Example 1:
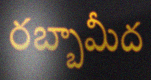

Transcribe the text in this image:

రబ్బామీద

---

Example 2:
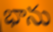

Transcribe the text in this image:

భాను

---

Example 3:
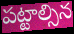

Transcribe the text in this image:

పట్టాల్సిన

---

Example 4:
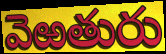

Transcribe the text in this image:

వెఱతురు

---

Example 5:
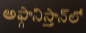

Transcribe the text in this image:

అఫ్గానిస్తాన్‌లో